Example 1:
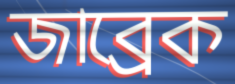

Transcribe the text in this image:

জাব্রেক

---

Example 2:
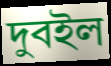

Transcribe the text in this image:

দুবইল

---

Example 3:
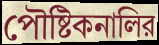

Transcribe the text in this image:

পৌষ্টিকনালির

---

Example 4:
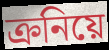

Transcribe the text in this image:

ক্রনিয়ে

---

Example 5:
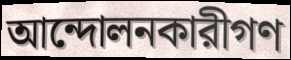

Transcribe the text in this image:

আন্দোলনকারীগণ